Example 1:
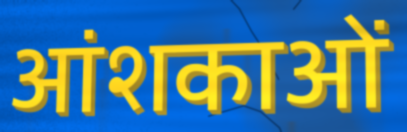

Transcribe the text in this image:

आंशकाओं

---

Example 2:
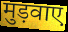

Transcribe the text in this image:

मुड़वाए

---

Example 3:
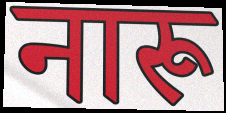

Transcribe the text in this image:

नारू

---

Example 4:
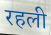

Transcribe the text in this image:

रहली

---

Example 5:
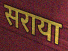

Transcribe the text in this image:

सराया